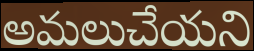
అమలుచేయని